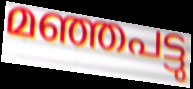
മഞ്ഞപട്ടു